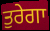
ਤੁਰੇਗਾ